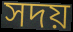
সদয়